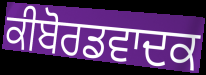
ਕੀਬੋਰਡਵਾਦਕ